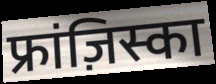
फ्रांज़िस्का